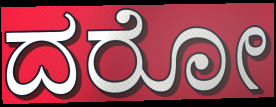
ದರೋ